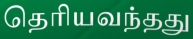
தெரியவந்தது